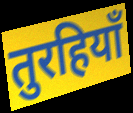
तुरहियाँ